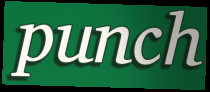
punch